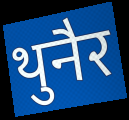
थुनैर